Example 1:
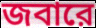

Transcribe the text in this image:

জবারে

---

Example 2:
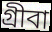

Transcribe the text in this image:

গ্রীবা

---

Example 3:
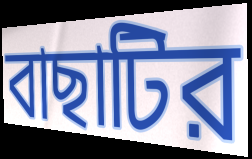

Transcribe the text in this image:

বাছাটির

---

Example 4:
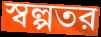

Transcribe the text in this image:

স্বল্পতর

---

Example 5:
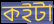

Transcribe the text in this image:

কইটা